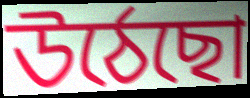
উঠেছো